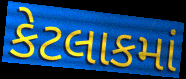
કેટલાકમાં